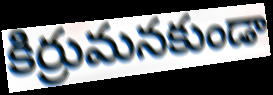
కిర్రుమనకుండా